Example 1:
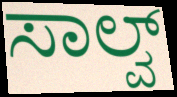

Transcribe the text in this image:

ಸಾಲ್ವ್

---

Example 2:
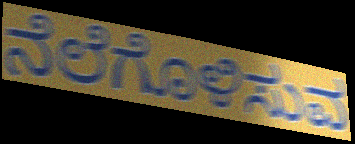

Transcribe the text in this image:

ನೆಲೆಗೊಳಿಸುವ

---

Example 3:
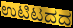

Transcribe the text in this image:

ಉಟಿಟದದ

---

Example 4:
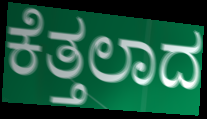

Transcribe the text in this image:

ಕೆತ್ತಲಾದ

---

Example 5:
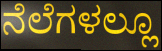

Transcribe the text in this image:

ನೆಲೆಗಳಲ್ಲೂ